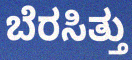
ಬೆರಸಿತ್ತು